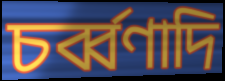
চর্ব্বণাদি